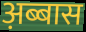
अ़ब्बास